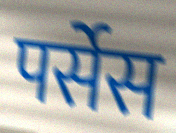
पर्सेस